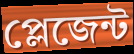
প্লেজেন্ট